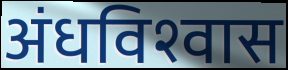
अंधविश्वास